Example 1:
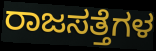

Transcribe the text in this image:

ರಾಜಸತ್ತೆಗಳ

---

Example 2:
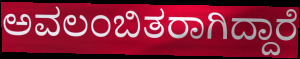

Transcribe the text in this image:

ಅವಲಂಬಿತರಾಗಿದ್ದಾರೆ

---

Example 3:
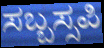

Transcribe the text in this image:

ಸಬ್ಬಸ್ಸಪಿ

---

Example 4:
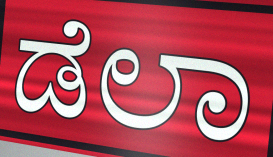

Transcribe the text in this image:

ಡೆಲಾ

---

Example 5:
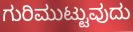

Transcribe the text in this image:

ಗುರಿಮುಟ್ಟುವುದು